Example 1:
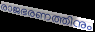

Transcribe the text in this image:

രാജഭരണത്തിനും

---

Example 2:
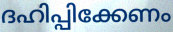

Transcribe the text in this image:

ദഹിപ്പിക്കേണം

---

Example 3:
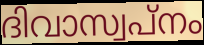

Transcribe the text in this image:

ദിവാസ്വപ്നം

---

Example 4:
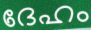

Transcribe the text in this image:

ദേഹം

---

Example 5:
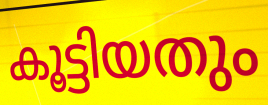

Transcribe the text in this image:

കൂട്ടിയതും